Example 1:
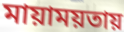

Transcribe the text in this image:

মায়াময়তায়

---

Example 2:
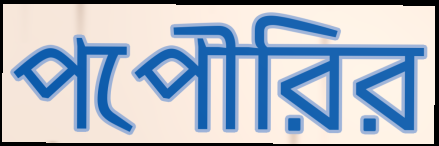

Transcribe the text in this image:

পপৌরির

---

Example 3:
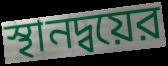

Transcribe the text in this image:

স্থানদ্বয়ের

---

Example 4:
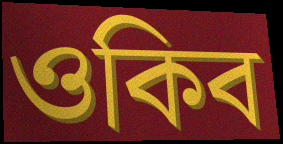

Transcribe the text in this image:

ওকিব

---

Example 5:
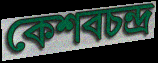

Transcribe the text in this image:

কেশবচন্দ্র